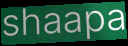
shaapa